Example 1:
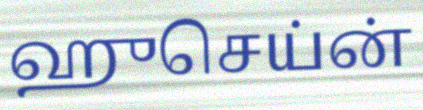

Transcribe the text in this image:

ஹுசெய்ன்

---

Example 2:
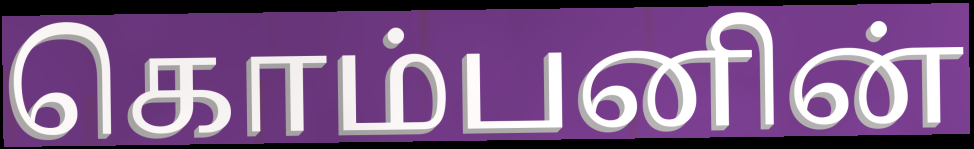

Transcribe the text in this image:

கொம்பனின்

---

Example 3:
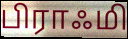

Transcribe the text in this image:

பிராஃமி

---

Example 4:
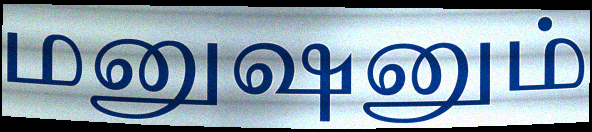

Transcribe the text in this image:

மனுஷனும்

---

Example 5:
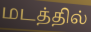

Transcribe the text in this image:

மடத்தில்